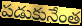
పడుకునేంత